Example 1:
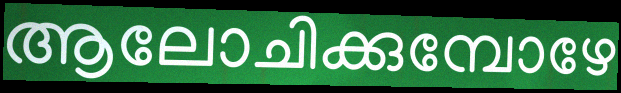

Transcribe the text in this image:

ആലോചിക്കുമ്പോഴേ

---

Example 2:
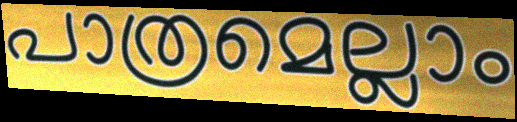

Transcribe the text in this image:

പാത്രമെല്ലാം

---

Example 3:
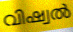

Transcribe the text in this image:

വിഷ്വൽ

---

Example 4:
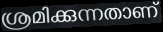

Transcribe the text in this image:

ശ്രമിക്കുന്നതാണ്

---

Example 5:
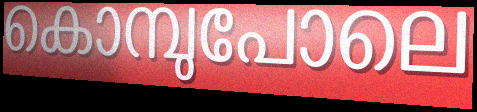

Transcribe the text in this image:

കൊമ്പുപോലെ